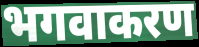
भगवाकरण